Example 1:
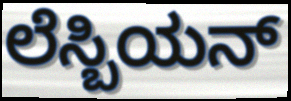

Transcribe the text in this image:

ಲೆಸ್ಬಿಯನ್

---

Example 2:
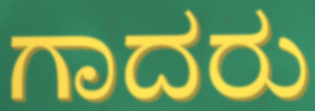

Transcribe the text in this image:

ಗಾದರು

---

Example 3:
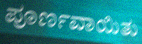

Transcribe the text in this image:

ಪೂರ್ಣವಾಯಿತು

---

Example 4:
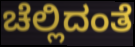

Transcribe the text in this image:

ಚೆಲ್ಲಿದಂತೆ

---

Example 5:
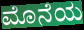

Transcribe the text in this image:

ಮೊನೆಯ